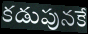
కడుపునకే